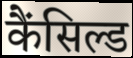
कैंसिल्ड